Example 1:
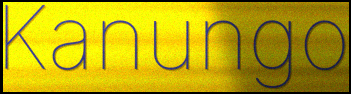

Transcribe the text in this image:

Kanungo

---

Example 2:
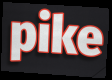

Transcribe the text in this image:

pike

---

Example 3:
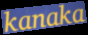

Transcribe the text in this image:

kanaka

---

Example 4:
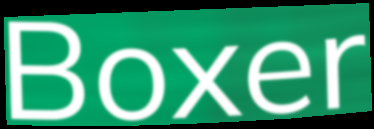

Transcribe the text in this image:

Boxer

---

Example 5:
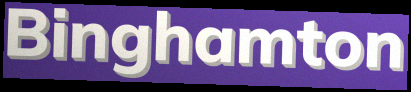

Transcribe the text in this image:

Binghamton